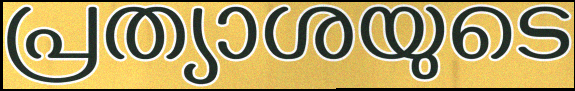
പ്രത്യാശയുടെ